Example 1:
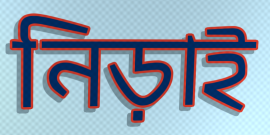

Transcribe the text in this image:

নিড়াই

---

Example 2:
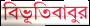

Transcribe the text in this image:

বিভূতিবাবুর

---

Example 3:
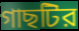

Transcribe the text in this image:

গাছটির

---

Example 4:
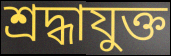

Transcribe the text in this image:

শ্রদ্ধাযুক্ত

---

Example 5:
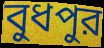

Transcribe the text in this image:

বুধপুর